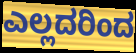
ಎಲ್ಲದರಿಂದ